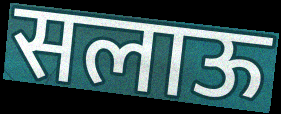
सलाऊ